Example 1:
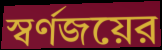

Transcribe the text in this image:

স্বর্ণজয়ের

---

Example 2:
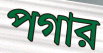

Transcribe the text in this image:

পগার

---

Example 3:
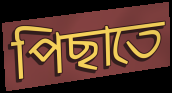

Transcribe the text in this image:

পিছাতে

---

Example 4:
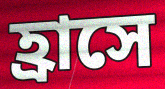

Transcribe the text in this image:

হ্রাসে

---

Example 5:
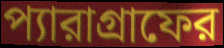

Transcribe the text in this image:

প্যারাগ্রাফের